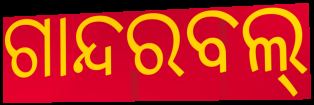
ଗାନ୍ଦରବଲ୍